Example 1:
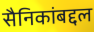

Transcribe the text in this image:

सैनिकांबद्दल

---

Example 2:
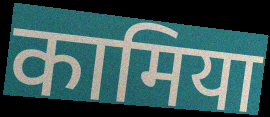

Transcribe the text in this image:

कामिया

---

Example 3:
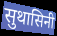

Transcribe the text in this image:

सुथासिनी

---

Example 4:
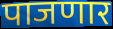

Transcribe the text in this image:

पाजणार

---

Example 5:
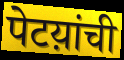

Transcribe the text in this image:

पेटय़ांची